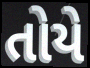
તોયે